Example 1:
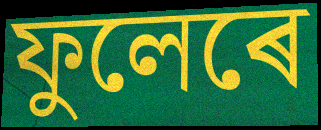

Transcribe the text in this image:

ফুলেৰে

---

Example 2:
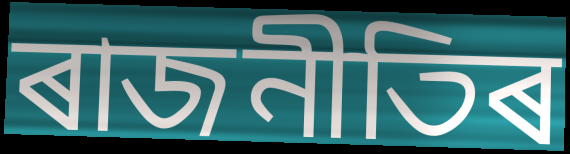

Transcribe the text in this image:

ৰাজনীতিৰ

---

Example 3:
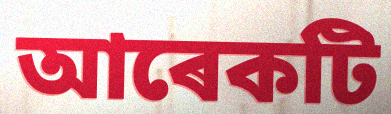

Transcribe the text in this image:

আৰেকটি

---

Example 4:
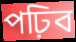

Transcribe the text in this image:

পঢ়িব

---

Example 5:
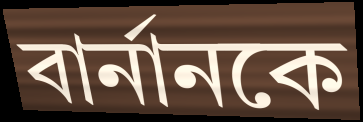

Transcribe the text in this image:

বাৰ্নানকে